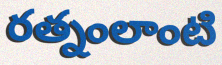
రత్నంలాంటి